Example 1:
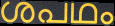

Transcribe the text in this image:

ശപഥം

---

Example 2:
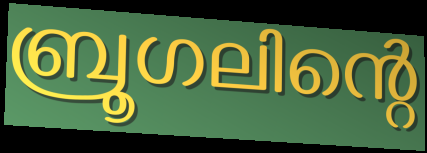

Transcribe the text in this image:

ബ്രൂഗലിന്റെ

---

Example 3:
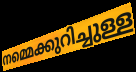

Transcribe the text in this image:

നമ്മെക്കുറിച്ചുള്ള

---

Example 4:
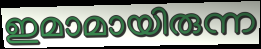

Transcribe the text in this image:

ഇമാമായിരുന്ന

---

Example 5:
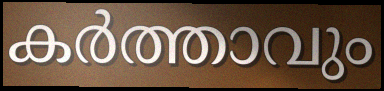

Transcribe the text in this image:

കർത്താവും